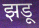
झडू